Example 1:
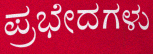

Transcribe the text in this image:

ಪ್ರಭೇದಗಳು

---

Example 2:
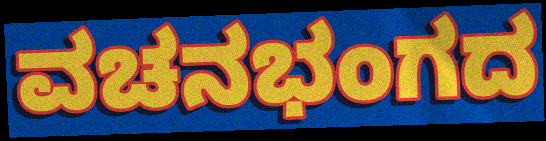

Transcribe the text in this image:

ವಚನಭಂಗದ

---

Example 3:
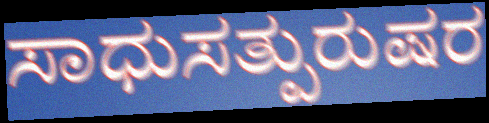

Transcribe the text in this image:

ಸಾಧುಸತ್ಪುರುಷರ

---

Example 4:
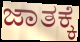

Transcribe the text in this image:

ಜಾತಕ್ಕೆ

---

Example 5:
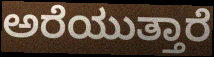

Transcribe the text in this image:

ಅರೆಯುತ್ತಾರೆ